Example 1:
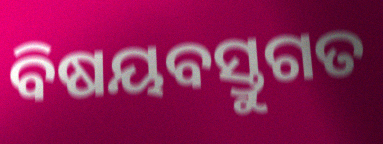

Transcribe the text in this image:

ବିଷୟବସ୍ତୁଗତ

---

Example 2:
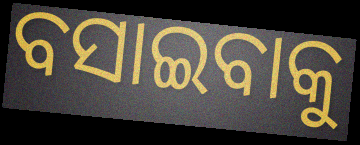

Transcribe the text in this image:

ବସାଇବାକୁ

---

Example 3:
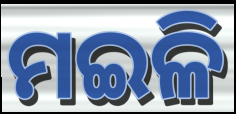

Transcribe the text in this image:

ମଇଳି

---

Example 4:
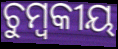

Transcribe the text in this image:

ଚୁମ୍ବକୀୟ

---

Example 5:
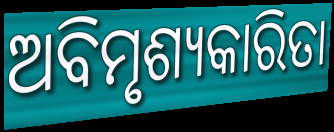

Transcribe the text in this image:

ଅବିମୃଶ୍ୟକାରିତା